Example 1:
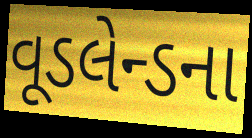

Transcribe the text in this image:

વૂડલેન્ડના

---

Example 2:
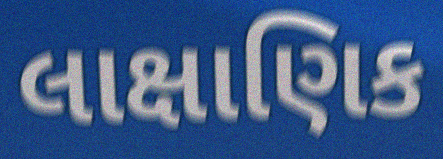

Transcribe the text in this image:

લાક્ષાણિક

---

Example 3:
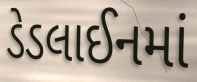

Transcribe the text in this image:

ડેડલાઈનમાં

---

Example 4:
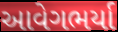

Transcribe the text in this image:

આવેગભર્યા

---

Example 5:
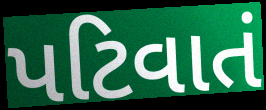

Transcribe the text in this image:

પટિવાતં